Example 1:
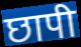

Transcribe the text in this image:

छापी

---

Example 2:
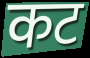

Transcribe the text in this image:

कट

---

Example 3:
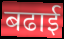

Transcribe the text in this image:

बढाई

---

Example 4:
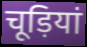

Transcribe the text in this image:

चूड़ियां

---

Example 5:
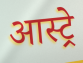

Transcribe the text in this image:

आस्ट्रे